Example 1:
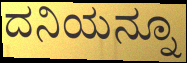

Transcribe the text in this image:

ದನಿಯನ್ನೂ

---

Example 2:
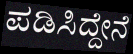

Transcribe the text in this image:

ಪಡಿಸಿದ್ದೇನೆ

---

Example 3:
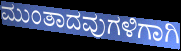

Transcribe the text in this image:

ಮುಂತಾದವುಗಳಿಗಾಗಿ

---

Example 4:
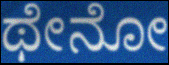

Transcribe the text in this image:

ಥೇನೋ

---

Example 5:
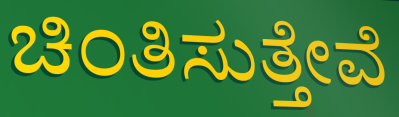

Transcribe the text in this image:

ಚಿಂತಿಸುತ್ತೇವೆ